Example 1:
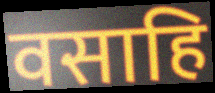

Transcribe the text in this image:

वसाहि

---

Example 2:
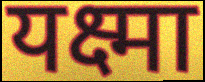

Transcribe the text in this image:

यक्ष्मा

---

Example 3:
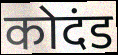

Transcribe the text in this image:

कोदंड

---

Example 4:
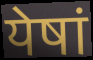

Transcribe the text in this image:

येषां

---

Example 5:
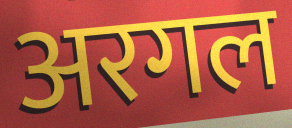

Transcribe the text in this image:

अरगल